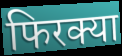
फिरक्या